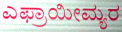
ಎಫ್ರಾಯೀಮ್ಯರ